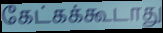
கேட்கக்கூடாது